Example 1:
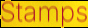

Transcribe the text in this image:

Stamps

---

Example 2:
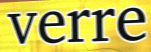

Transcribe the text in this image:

verre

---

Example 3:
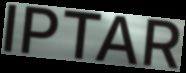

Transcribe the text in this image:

IPTAR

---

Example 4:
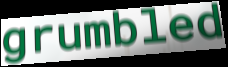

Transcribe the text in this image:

grumbled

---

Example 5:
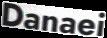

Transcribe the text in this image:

Danaei